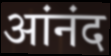
आंनंद